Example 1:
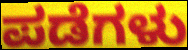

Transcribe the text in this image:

ಪಡೆಗಳು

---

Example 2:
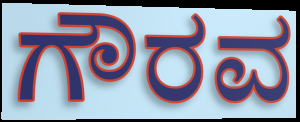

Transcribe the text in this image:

ಗೌರವ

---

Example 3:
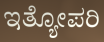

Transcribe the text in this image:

ಇತ್ಯೋಪರಿ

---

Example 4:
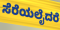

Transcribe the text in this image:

ಸೆರೆಯಲೈದರೆ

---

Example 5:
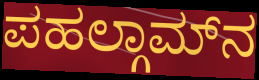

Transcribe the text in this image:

ಪಹಲ್ಗಾಮ್‌ನ